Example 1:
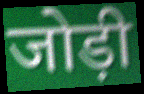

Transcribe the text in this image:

जोड़ी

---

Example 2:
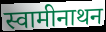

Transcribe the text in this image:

स्वामीनाथन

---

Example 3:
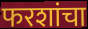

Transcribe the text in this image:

फरशांचा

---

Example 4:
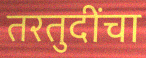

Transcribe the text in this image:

तरतुदींचा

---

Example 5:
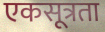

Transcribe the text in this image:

एकसूत्रता